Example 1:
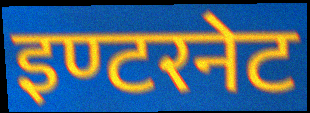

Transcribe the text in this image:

इण्टरनेट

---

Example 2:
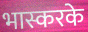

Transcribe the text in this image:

भास्करके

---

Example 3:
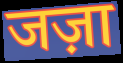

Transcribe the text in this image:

जज़ा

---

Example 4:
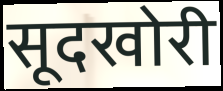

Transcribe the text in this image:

सूदखोरी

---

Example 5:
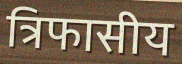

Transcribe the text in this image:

त्रिफासीय